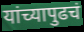
यांच्यापुढचं